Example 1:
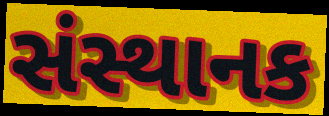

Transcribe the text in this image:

સંસ્થાનક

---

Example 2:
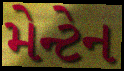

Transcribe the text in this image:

મેન્ટેન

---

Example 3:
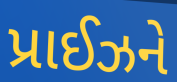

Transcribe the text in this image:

પ્રાઈઝને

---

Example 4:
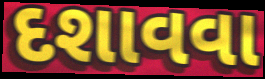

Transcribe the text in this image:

દશાવવા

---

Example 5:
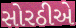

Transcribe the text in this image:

સોરઠીએ